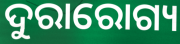
ଦୁରାରୋଗ୍ୟ